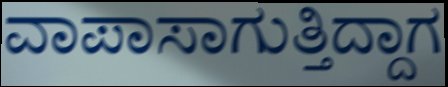
ವಾಪಾಸಾಗುತ್ತಿದ್ದಾಗ